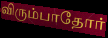
விரும்பாதோர்